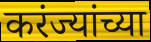
करंज्यांच्या